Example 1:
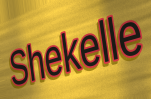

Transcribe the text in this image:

Shekelle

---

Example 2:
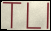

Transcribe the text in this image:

TLI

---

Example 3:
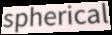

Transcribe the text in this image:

spherical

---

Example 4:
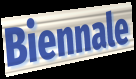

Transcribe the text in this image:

Biennale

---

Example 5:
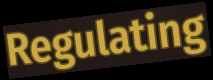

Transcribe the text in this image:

Regulating